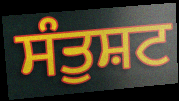
ਸੰਤੁਸ਼ਟ